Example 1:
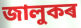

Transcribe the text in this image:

জালুকৰ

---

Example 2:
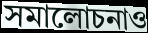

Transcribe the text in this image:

সমালোচনাও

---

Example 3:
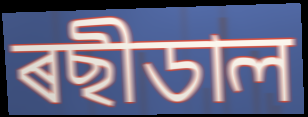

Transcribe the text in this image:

ৰছীডাল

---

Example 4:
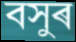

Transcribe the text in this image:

বসুৰ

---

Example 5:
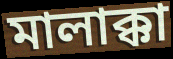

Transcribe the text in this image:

মালাক্কা